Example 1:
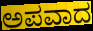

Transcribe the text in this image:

ಅಪವಾದ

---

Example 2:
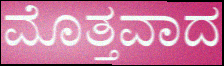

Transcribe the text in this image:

ಮೊತ್ತವಾದ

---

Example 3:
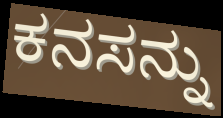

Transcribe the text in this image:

ಕನಸನ್ನು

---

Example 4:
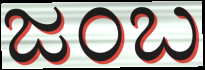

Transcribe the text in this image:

ಜಂಬ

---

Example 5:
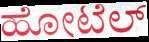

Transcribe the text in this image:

ಹೋಟೆಲ್